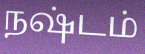
நஷ்டம்